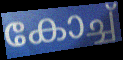
കോച്ച്